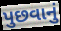
પુછવાનું